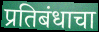
प्रतिबंधाचा